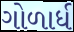
ગોળાર્ધ